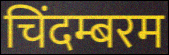
चिंदम्बरम